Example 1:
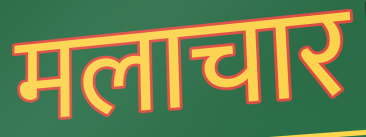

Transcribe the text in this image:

मलाचार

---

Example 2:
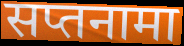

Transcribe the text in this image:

सप्तनामा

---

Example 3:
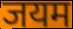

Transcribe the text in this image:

जयम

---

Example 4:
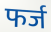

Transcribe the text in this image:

फर्ज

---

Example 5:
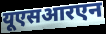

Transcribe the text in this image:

यूएसआरएन